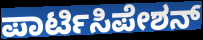
ಪಾರ್ಟಿಸಿಪೇಶನ್